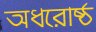
অধরোষ্ঠ